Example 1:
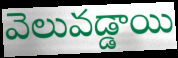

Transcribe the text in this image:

వెలువడ్డాయి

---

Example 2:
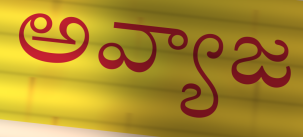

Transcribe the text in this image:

అవ్యాజ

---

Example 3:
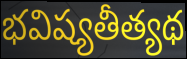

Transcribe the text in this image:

భవిష్యతీత్యథ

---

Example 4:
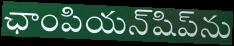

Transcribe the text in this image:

ఛాంపియన్‌షిప్‌ను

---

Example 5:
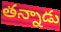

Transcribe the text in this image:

తన్నాడు